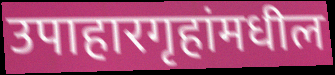
उपाहारगृहांमधील